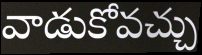
వాడుకోవచ్చు